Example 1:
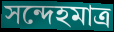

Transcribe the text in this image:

সন্দেহমাত্র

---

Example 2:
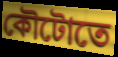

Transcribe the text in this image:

কৌটোতে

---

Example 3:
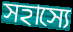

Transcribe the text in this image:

সহাস্যে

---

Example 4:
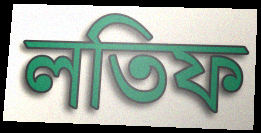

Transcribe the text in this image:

লতিফ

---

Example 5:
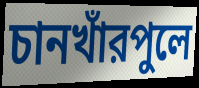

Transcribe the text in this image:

চানখাঁরপুলে